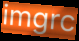
imgrc